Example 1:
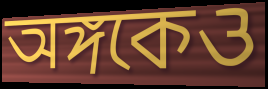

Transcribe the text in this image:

অঙ্গকেও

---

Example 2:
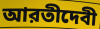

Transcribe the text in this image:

আরতীদেবী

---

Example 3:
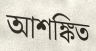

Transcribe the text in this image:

আশঙ্কিত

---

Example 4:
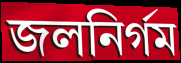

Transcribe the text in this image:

জলনির্গম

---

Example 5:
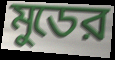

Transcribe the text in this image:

মুডের